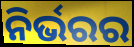
ନିର୍ଭରର